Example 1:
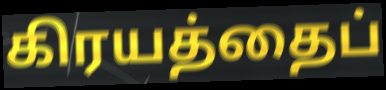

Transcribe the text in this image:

கிரயத்தைப்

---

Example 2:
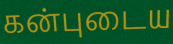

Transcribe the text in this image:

கன்புடைய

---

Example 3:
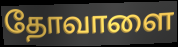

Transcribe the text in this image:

தோவாளை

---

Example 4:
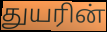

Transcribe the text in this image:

துயரின்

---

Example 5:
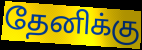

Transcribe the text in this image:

தேனிக்கு